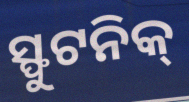
ସ୍ଫୁଟନିକ୍